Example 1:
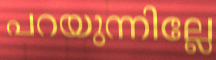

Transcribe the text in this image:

പറയുന്നില്ലേ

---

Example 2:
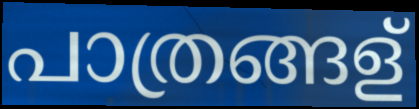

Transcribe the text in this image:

പാത്രങ്ങള്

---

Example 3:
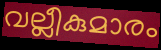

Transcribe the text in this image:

വല്ലീകുമാരം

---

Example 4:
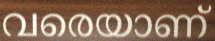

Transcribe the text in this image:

വരെയാണ്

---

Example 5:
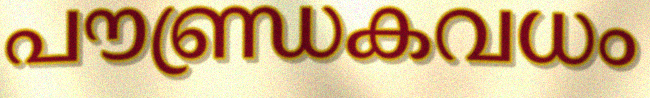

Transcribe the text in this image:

പൗണ്ഡ്രകവധം